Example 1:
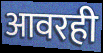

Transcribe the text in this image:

आवरही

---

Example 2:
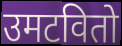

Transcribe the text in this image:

उमटवितो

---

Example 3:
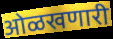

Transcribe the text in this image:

ओळखणारी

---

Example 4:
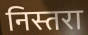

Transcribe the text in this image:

निस्तरा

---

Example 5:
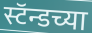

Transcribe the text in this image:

स्टॅन्डच्या